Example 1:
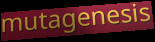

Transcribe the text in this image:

mutagenesis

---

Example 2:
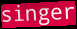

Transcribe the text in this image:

singer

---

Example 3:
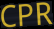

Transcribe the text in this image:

CPR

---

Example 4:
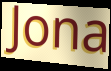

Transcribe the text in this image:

Jona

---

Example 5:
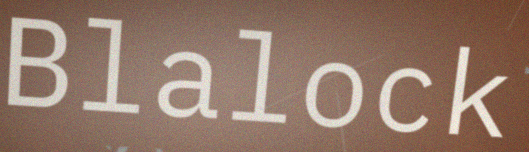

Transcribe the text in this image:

Blalock